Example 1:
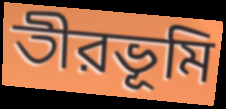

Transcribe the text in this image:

তীরভূমি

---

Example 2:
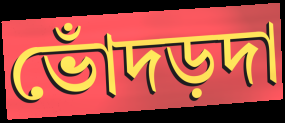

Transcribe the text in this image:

ভোঁদড়দা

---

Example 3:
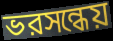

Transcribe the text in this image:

ভরসন্ধেয়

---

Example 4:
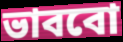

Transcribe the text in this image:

ভাববো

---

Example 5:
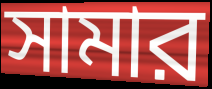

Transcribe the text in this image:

সামার